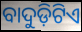
ବାଦୁଡ଼ିଟିଏ